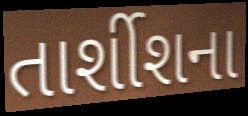
તાર્શીશના